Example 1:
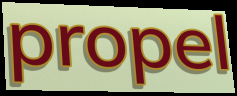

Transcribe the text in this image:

propel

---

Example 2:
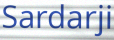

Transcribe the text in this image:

Sardarji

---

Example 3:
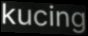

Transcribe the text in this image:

kucing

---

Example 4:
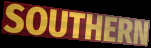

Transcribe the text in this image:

SOUTHERN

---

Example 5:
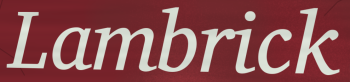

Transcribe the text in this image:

Lambrick